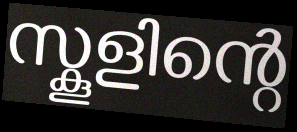
സ്കൂളിന്റെ